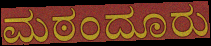
ಮಠಂದೂರು